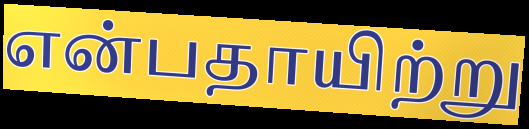
என்பதாயிற்று